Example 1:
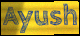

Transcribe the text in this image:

Ayush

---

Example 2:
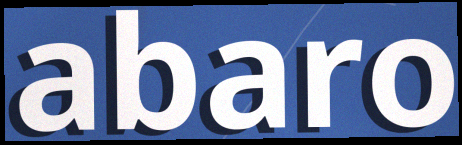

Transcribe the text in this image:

abaro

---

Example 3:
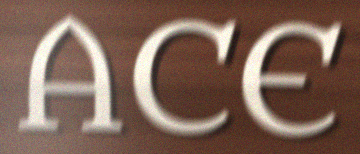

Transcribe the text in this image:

ACE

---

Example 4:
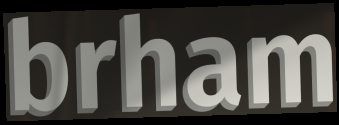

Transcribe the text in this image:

brham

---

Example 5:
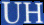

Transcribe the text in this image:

UH